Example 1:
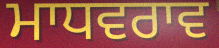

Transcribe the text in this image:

ਮਾਧਵਰਾਵ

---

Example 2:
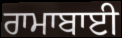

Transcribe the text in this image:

ਰਾਮਾਬਾਈ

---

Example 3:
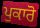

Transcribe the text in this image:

ਪੁਕਾਰੋ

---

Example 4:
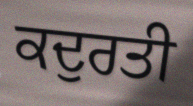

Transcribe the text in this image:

ਕਦੁਰਤੀ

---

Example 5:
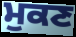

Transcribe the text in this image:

ਮੁਕਣ